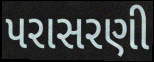
પરાસરણી